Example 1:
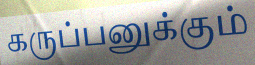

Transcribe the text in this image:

கருப்பனுக்கும்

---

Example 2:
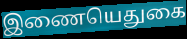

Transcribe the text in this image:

இணையெதுகை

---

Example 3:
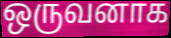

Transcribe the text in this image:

ஒருவனாக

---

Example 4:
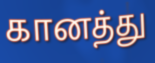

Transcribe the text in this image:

கானத்து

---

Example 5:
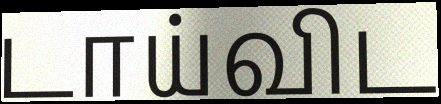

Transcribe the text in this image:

டாய்விட